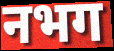
नभग